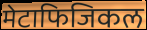
मेटाफिजिकल